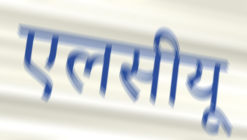
एलसीयू